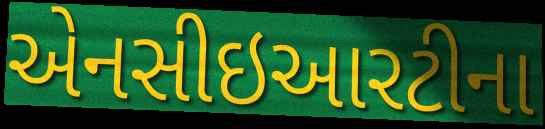
એનસીઇઆરટીના